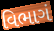
વિભાગં